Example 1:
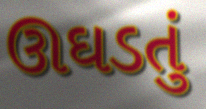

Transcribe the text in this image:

ઊઘડતું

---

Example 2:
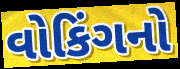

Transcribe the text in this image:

વોકિંગનો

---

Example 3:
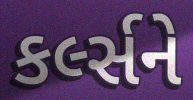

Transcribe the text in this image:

કર્લ્સને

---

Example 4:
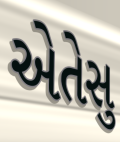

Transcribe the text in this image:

એતેસુ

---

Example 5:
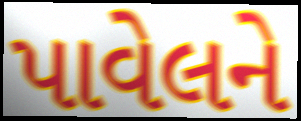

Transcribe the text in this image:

પાવેલને